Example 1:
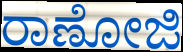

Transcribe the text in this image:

ರಾಣೋಜಿ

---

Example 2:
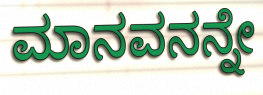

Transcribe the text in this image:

ಮಾನವನನ್ನೇ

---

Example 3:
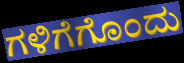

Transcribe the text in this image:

ಗಳಿಗೆಗೊಂದು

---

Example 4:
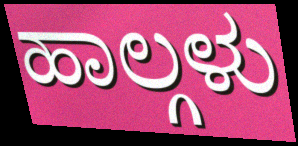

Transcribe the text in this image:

ಹಾಲ್ಗಳು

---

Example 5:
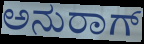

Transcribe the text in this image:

ಅನುರಾಗ್